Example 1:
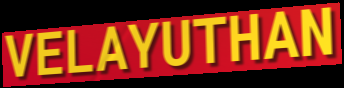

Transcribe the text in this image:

VELAYUTHAN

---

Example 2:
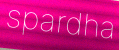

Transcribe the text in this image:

spardha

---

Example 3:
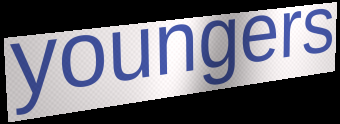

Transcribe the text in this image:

youngers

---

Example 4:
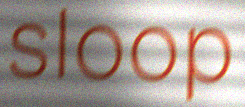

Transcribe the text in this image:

sloop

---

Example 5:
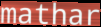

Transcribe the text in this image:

mathar